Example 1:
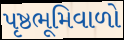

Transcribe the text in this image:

પૃષ્ઠભૂમિવાળો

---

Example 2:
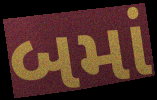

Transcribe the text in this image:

બમાં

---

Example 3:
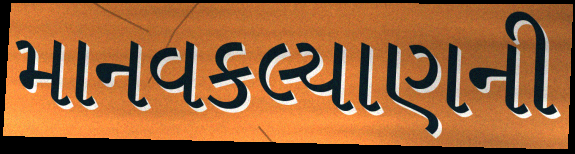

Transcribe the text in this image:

માનવકલ્યાણની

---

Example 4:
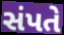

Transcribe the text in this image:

સંપતે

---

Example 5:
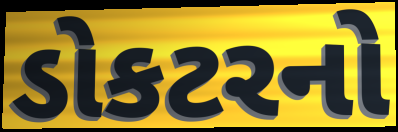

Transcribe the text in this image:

ડોકટરનો